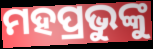
ମହପ୍ରଭୁଙ୍କୁ